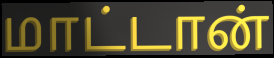
மாட்டான்